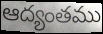
ఆద్యంతము